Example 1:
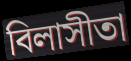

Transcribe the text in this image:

বিলাসীতা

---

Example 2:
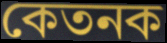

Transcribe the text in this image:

কেতনক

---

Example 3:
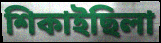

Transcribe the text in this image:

শিকাইছিলা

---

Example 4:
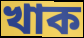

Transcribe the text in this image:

খাক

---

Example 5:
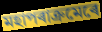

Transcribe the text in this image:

মহাপৰাক্ৰমেৰে